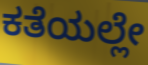
ಕತೆಯಲ್ಲೇ